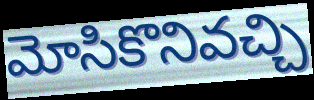
మోసికొనివచ్చి